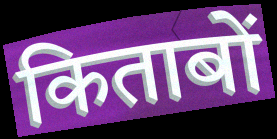
किताबों